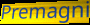
Premagni